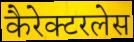
कैरेक्टरलेस